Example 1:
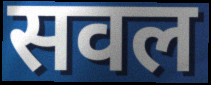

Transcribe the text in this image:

सवल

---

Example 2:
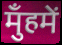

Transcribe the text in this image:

मुँहमें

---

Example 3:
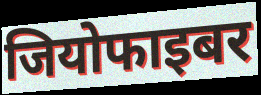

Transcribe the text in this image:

जियोफाइबर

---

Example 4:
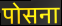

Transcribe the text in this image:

पोसना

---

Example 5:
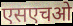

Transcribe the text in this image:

एसएचओ